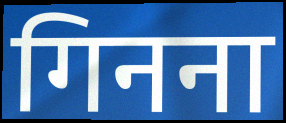
गिनना